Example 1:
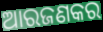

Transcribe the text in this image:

ଆରଜଣକର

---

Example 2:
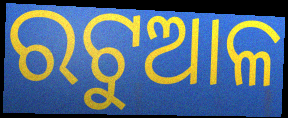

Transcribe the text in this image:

ରଟୁଆଳ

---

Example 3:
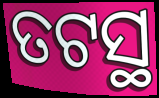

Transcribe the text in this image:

ତଟସ୍ଥ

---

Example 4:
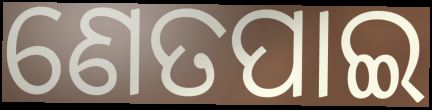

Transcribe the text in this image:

ଣେତପାଇ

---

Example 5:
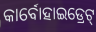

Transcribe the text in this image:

କାର୍ବୋହାଇଡ୍ରେଟ୍